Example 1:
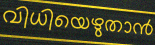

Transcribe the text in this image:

വിധിയെഴുതാൻ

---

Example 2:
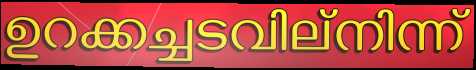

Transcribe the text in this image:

ഉറക്കച്ചടവില്നിന്ന്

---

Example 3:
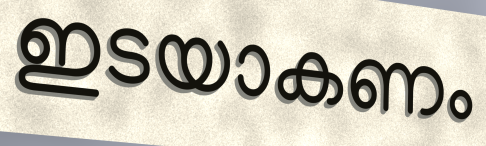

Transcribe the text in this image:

ഇടയാകണം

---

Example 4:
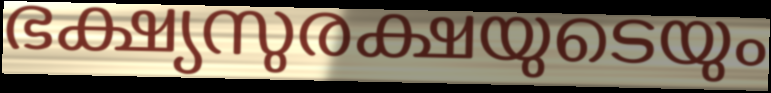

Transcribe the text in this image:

ഭക്ഷ്യസുരക്ഷയുടെയും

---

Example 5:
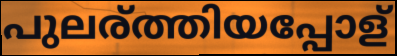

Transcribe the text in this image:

പുലര്ത്തിയപ്പോള്